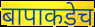
बापाकडेच